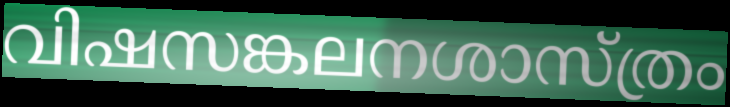
വിഷസങ്കലനശാസ്ത്രം